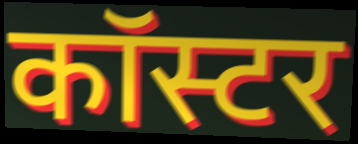
कॉस्टर